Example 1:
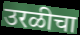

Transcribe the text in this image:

उरळीचा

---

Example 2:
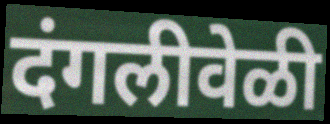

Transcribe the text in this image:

दंगलीवेळी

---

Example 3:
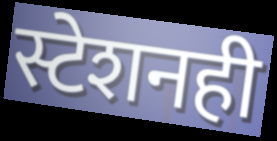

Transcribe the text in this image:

स्टेशनही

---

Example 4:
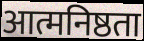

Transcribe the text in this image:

आत्मनिष्ठता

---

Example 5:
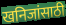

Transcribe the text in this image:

खनिजांसाठी